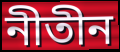
নীতীন